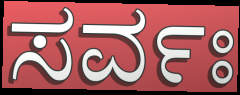
ಸರ್ವಃ